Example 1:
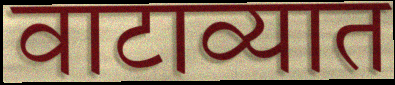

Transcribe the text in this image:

वाटाव्यात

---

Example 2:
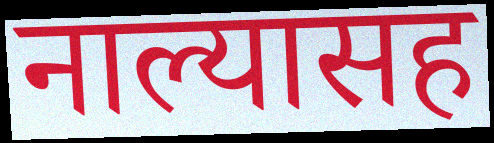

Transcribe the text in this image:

नाल्यासह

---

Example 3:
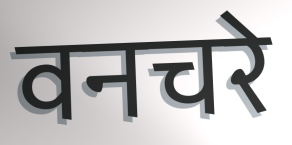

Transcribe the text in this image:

वनचरे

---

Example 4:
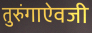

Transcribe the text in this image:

तुरुंगाऐवजी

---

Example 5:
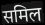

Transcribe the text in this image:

समिल